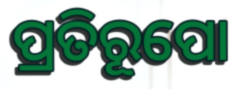
ପ୍ରତିରୂପୋ